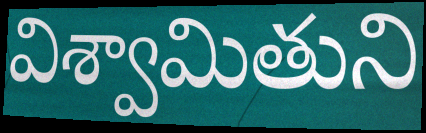
విశ్వామితుని